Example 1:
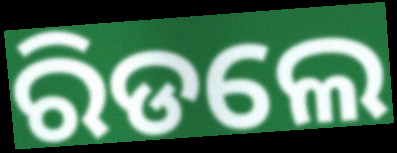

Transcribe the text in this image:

ରିଡଲେ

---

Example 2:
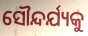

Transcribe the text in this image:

ସୌନ୍ଦର୍ଯ୍ୟକୁ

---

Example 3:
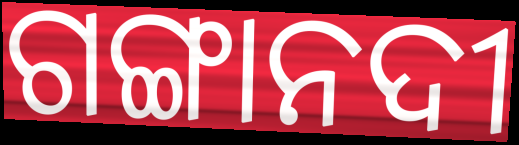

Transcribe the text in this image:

ଗଙ୍ଗାନଦୀ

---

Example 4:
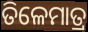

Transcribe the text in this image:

ତିଳେମାତ୍ର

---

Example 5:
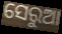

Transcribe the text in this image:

ସେରୁଆ